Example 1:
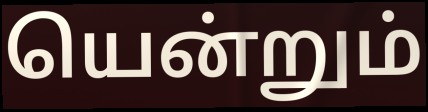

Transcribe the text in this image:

யென்றும்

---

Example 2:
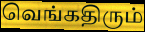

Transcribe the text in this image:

வெங்கதிரும்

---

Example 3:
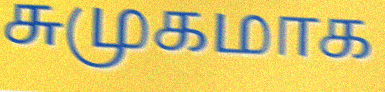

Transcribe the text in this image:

சுமுகமாக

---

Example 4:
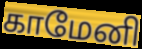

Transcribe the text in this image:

காமேனி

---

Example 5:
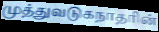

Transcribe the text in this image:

முத்துவடுகநாதரின்